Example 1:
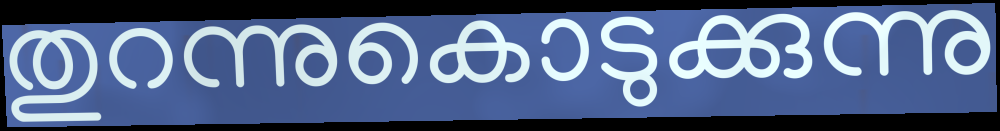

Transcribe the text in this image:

തുറന്നുകൊടുക്കുന്നു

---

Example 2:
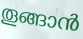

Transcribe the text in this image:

തൂങ്ങാൻ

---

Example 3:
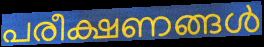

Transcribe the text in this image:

പരീക്ഷണങ്ങൾ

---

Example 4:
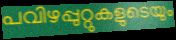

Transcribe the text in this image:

പവിഴപ്പുറ്റുകളുടെയും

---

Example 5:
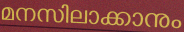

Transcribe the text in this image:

മനസിലാക്കാനും